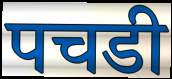
पचडी